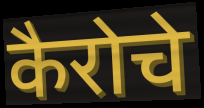
कैरोचे